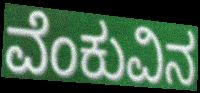
ವೆಂಕುವಿನ